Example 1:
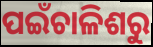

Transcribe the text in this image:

ପଇଁଚାଳିଶରୁ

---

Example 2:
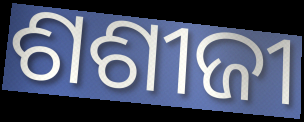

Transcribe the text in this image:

ଶଶୀଜୀ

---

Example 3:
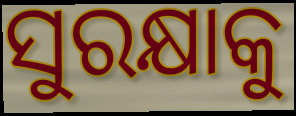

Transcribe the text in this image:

ସୁରକ୍ଷାକୁ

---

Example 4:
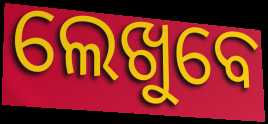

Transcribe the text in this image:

ଲେଖୁବେ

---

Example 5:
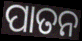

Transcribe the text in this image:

ପାତନ